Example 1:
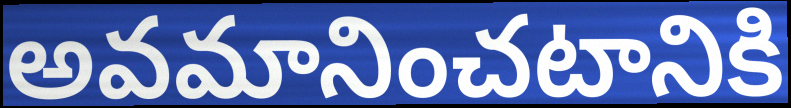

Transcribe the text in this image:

అవమానించటానికి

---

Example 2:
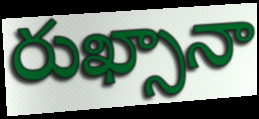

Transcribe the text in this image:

రుఖ్సానా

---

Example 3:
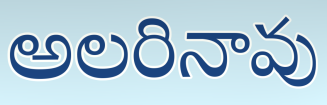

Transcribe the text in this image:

అలరినావు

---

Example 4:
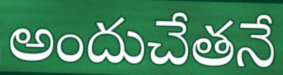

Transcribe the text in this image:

అందుచేతనే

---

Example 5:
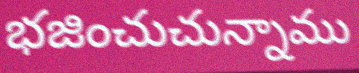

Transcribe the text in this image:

భజించుచున్నాము